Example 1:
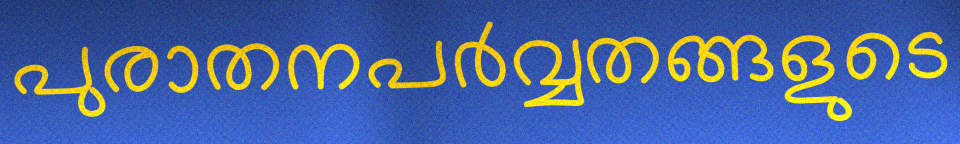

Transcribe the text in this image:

പുരാതനപർവ്വതങ്ങളുടെ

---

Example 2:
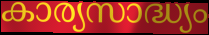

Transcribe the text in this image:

കാര്യസാദ്ധ്യം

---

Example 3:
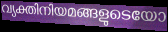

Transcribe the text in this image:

വ്യക്തിനിയമങ്ങളുടെയോ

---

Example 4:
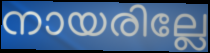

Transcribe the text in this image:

നായരില്ലേ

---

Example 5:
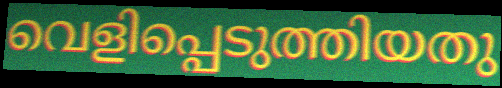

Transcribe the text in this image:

വെളിപ്പെടുത്തിയതു